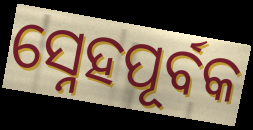
ସ୍ନେହପୂର୍ବକ